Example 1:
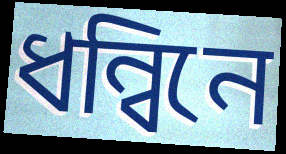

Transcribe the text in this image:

ধন্বিনে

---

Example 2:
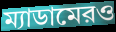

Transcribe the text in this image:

ম্যাডামেরও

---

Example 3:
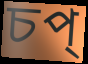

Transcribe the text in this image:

চপ্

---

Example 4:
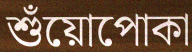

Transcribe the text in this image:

শুঁয়োপোকা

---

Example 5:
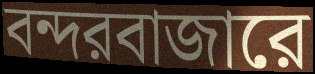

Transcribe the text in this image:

বন্দরবাজারে